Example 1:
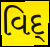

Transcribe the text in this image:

વિદ્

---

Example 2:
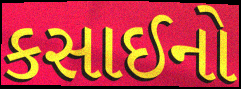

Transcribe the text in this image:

કસાઈનો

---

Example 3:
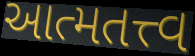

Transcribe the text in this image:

આત્મતત્ત્વ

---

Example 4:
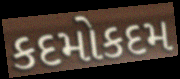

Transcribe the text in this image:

કદમોકદમ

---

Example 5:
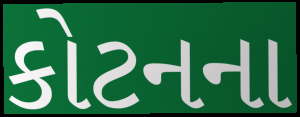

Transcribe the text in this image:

કોટનના